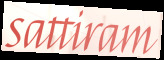
sattiram